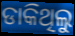
ଡାକିଥିଲୁ